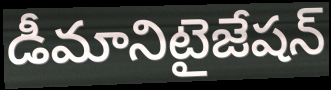
డీమానిటైజేషన్